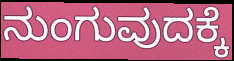
ನುಂಗುವುದಕ್ಕೆ